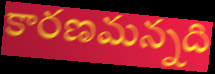
కారణమన్నది